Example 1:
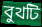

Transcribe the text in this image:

বুথটি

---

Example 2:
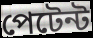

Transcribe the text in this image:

পেটেন্ট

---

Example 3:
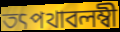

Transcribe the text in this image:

তৎপথাবলম্বী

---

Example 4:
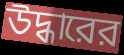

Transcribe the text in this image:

উদ্ধারের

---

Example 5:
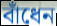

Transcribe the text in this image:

বাঁধেন